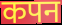
कपन